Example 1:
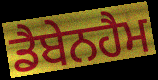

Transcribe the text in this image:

ਡੈਬੇਨਹੈਮ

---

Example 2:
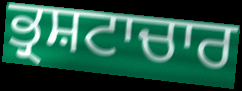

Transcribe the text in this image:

ਭ੍ਰਸ਼ਟਾਚਾਰ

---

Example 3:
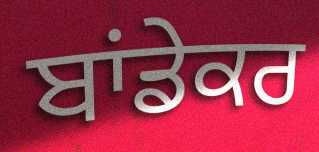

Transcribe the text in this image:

ਬਾਂਡੇਕਰ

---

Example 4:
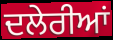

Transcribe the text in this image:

ਦਲੇਰੀਆਂ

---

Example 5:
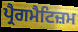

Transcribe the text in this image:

ਪ੍ਰੈਗਮੈਟਿਜ਼ਮ